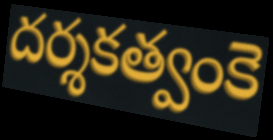
దర్శకత్వంకె